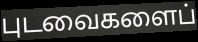
புடவைகளைப்